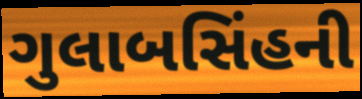
ગુલાબસિંહની